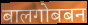
बालगोबबन